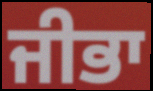
ਜੀਭਾ